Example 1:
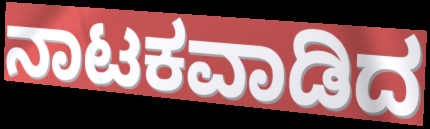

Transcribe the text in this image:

ನಾಟಕವಾಡಿದ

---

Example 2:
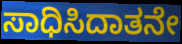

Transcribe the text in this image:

ಸಾಧಿಸಿದಾತನೇ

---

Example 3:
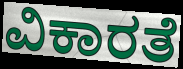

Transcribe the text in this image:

ವಿಕಾರತೆ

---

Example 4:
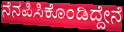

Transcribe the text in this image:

ನೆನಪಿಸಿಕೊಂಡಿದ್ದೇನೆ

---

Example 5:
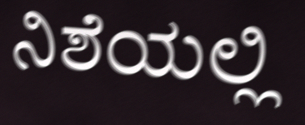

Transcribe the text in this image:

ನಿಶೆಯಲ್ಲಿ